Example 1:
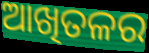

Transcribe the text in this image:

ଆଖିତଳର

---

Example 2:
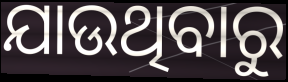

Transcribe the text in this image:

ଯାଉଥିବାରୁ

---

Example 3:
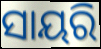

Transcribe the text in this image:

ସାୟରି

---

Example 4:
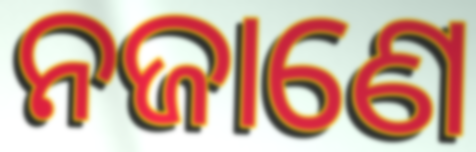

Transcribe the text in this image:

ନଜାଣେ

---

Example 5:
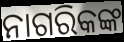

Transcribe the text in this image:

ନାଗରିକଙ୍କ